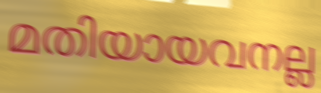
മതിയായവനല്ല